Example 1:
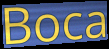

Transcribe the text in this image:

Boca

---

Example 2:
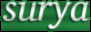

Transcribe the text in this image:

surya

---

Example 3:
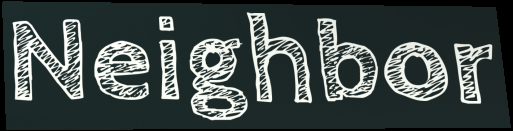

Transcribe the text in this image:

Neighbor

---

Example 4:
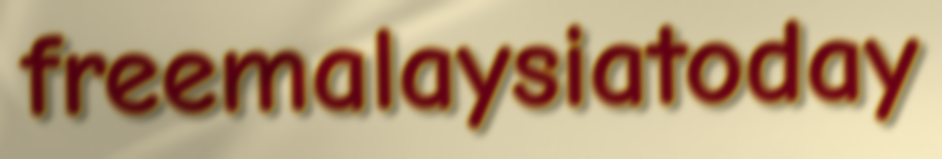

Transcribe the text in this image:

freemalaysiatoday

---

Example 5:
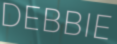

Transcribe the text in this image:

DEBBIE